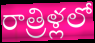
రాత్రిళ్లలో